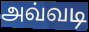
அவ்வடி